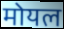
मोयल